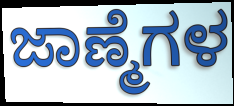
ಜಾಣ್ಮೆಗಳ